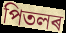
পিতলৰ